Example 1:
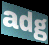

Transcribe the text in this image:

adg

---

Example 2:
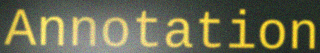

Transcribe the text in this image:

Annotation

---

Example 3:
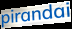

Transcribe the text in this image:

pirandai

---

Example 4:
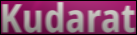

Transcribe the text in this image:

Kudarat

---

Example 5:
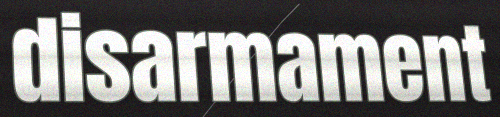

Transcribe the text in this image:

disarmament